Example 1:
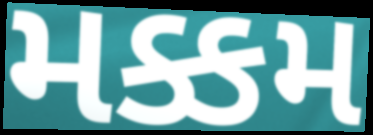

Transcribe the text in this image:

મક્કમ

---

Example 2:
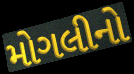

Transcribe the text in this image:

મોગલીનો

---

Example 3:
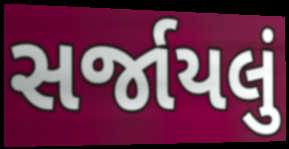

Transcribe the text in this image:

સર્જાયલું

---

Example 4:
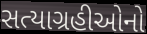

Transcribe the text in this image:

સત્યાગ્રહીઓનો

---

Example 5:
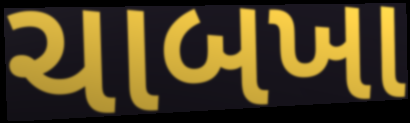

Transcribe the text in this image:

ચાબખા